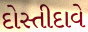
દોસ્તીદાવે